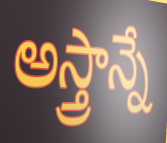
అస్త్రాన్నే